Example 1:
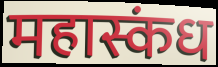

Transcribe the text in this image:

महास्कंध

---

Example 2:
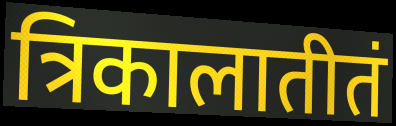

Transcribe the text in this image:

त्रिकालातीतं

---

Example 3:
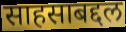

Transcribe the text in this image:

साहसाबद्दल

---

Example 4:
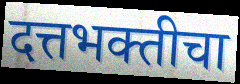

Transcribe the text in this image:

दत्तभक्तीचा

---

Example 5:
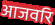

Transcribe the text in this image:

आजवरि